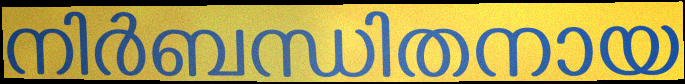
നിർബന്ധിതനായ